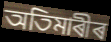
অতিমাৰীৰ